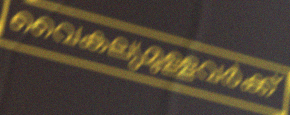
വൈകല്യമുള്ളവർക്ക്